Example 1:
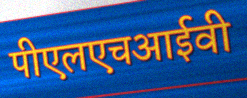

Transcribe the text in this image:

पीएलएचआईवी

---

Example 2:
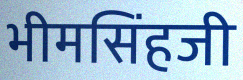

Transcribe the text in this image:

भीमसिंहजी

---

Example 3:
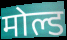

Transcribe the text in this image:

मोल्ड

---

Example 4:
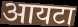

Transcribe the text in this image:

आयटा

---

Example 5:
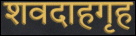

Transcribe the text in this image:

शवदाहगृह